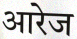
आरेज